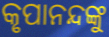
କୃପାନନ୍ଦଙ୍କୁ